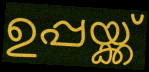
ഉപ്പയ്ക്ക്